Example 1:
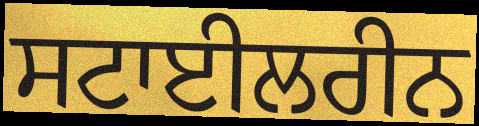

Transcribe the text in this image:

ਸਟਾਈਲਰੀਨ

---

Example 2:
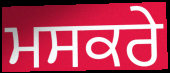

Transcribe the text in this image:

ਮਸਕਰੇ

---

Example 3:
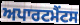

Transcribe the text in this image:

ਅਪਾਰਟਮੈਂਟਸ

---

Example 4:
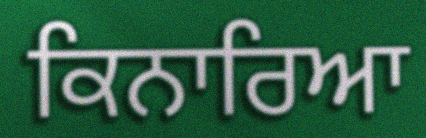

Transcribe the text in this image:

ਕਿਨਾਰਿਆ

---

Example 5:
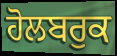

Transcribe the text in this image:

ਹੋਲਬਰੁਕ